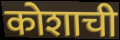
कोशाची